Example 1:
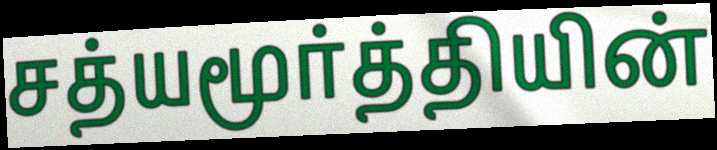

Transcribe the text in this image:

சத்யமூர்த்தியின்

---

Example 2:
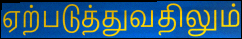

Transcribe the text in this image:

ஏற்படுத்துவதிலும்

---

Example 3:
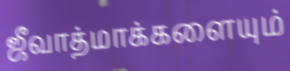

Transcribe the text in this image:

ஜீவாத்மாக்களையும்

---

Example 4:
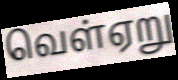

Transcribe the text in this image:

வெள்ஏறு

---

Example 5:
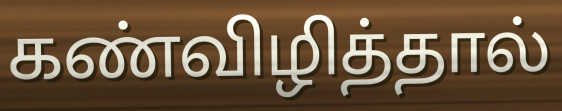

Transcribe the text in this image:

கண்விழித்தால்